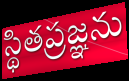
స్థితప్రజ్ఞను